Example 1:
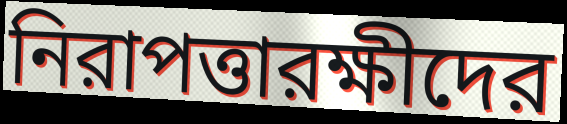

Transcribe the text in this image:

নিরাপত্তারক্ষীদের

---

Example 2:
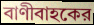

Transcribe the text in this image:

বাণীবাহকের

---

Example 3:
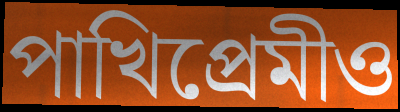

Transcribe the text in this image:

পাখিপ্রেমীও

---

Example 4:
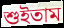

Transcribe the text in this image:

শুইতাম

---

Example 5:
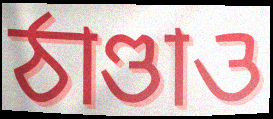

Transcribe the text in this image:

ঠাণ্ডাও